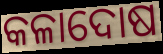
କଳାଦୋଷ